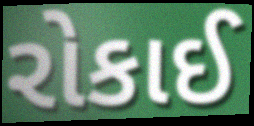
રોકાઈ